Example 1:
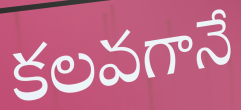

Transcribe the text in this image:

కలవగానే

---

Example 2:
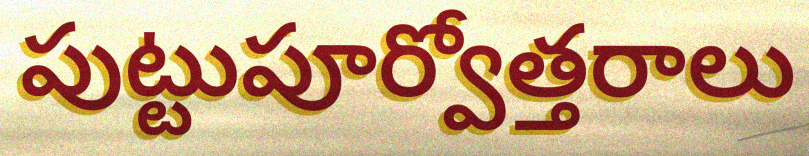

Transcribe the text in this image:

పుట్టుపూర్వోత్తరాలు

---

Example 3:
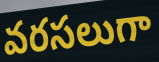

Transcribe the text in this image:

వరసలుగా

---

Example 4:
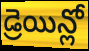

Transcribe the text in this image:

డ్రెయిన్లో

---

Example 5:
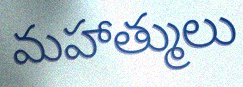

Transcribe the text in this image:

మహాత్ములు